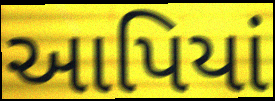
આપિયાં